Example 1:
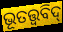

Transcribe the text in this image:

ଭୂତତ୍ତ୍ବବିଦ୍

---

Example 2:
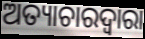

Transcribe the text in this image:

ଅତ୍ୟାଚାରଦ୍ୱାରା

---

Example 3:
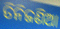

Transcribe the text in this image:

ତିନିଜଣିଆ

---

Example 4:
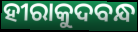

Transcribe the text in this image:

ହୀରାକୁଦବନ୍ଧ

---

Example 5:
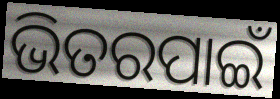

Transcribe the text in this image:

ଭିତରପାଇଁ